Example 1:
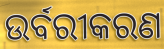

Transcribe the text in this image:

ଉର୍ବରୀକରଣ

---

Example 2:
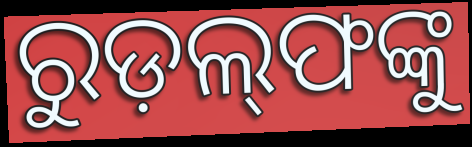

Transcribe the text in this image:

ରୁଡ଼ଲ୍‍ଫଙ୍କୁ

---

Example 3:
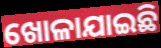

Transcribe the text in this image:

ଖୋଳାଯାଇଛି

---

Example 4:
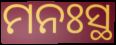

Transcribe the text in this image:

ମନଃସ୍ଥ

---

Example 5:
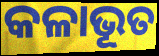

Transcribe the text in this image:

କଳାଭୂତ